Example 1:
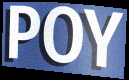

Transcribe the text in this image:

POY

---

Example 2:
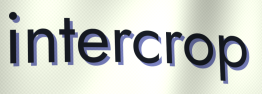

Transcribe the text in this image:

intercrop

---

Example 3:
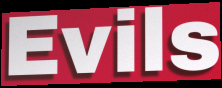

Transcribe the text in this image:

Evils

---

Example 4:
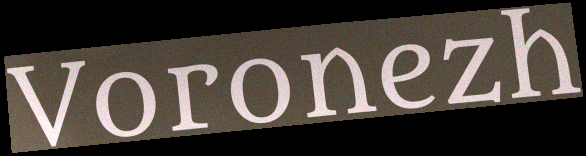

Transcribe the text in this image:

Voronezh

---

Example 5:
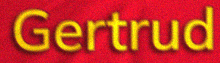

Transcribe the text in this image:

Gertrud